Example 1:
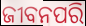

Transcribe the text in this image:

ଜୀବନପରି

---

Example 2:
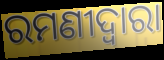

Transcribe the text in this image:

ରମଣୀଦ୍ୱାରା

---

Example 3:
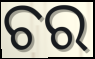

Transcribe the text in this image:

ଚର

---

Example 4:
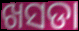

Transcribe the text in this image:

ଖସଡା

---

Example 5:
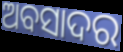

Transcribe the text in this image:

ଅବସାଦର